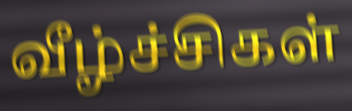
வீழ்ச்சிகள்